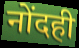
नोंदही